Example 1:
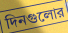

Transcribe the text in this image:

দিনগুলোর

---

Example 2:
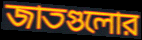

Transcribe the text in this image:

জাতগুলোর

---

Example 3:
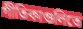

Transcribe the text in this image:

গীতিকাগুলিতে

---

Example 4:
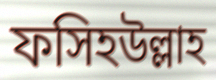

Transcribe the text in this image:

ফসিহউল্লাহ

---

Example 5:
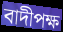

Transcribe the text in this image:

বাদীপক্ষ